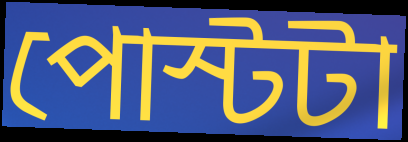
পোস্টটা